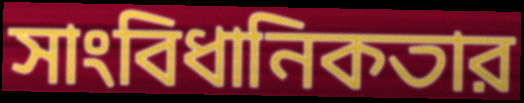
সাংবিধানিকতার